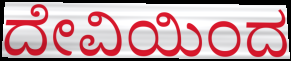
ದೇವಿಯಿಂದ